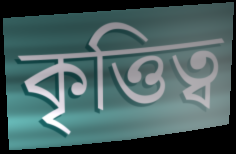
কৃত্তিত্ব